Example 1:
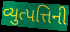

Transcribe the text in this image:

વ્યુત્પત્તિની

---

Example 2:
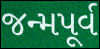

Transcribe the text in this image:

જન્મપૂર્વ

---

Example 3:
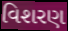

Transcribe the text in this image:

વિશરણ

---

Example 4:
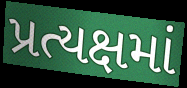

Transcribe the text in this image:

પ્રત્‍યક્ષમાં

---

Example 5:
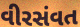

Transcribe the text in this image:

વીરસંવત